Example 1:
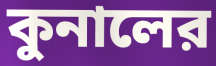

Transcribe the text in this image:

কুনালের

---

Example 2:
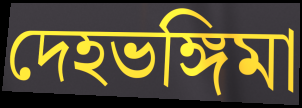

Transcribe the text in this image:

দেহভঙ্গিমা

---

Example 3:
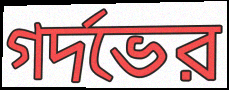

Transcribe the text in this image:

গর্দভের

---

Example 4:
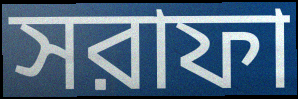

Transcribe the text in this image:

সরাফা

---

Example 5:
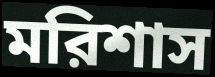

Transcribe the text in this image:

মরিশাস